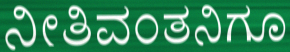
ನೀತಿವಂತನಿಗೂ